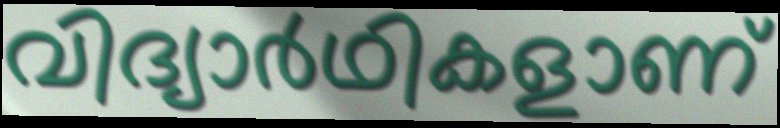
വിദ്യാർഥികളാണ്